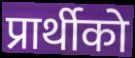
प्रार्थीको